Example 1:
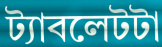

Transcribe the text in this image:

ট্যাবলেটটা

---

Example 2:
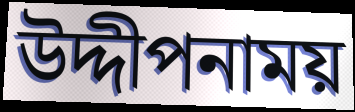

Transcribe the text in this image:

উদ্দীপনাময়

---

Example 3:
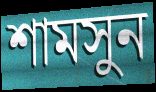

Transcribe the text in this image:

শামসুন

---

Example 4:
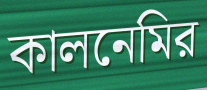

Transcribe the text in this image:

কালনেমির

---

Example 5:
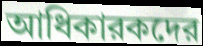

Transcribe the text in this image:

আধিকারকদের